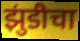
झुंडीचा